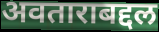
अवताराबद्दल